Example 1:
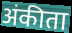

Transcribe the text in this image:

अंकीता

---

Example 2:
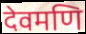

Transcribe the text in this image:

देवमणि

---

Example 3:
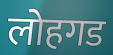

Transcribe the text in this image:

लोहगड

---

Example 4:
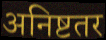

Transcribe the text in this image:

अनिष्टतर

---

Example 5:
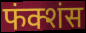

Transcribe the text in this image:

फंक्शंस